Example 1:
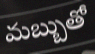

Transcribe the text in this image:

మబ్బుతో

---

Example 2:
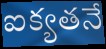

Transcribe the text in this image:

ఐక్యతనే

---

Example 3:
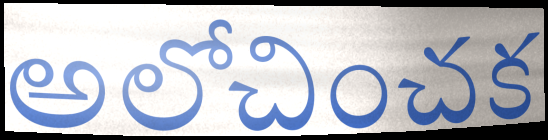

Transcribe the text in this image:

అలోచించక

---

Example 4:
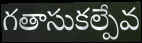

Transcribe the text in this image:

గతాసుకల్పేవ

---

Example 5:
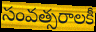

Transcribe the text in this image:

సంవత్సరాలకీ